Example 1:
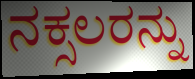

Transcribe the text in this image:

ನಕ್ಸಲರನ್ನು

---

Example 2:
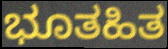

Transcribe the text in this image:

ಭೂತಹಿತ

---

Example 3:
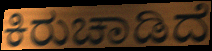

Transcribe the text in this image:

ಕಿರುಚಾಡಿದೆ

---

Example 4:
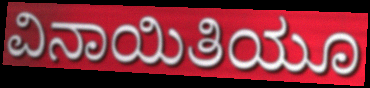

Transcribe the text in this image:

ವಿನಾಯಿತಿಯೂ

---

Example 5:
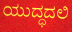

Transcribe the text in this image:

ಯುದ್ಧದಲಿ